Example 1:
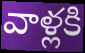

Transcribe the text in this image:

వాళ్లకి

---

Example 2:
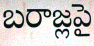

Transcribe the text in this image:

బరాజ్లపై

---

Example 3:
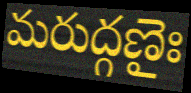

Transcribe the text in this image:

మరుద్గణైః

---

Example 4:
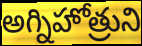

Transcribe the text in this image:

అగ్నిహోత్రుని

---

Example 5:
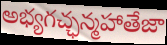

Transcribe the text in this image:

అభ్యగచ్ఛన్మహాతేజా